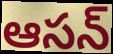
ఆసన్